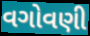
વગોવણી